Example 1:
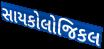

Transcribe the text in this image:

સાયકોલોજિકલ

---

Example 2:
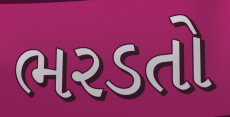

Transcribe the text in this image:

ભરડતો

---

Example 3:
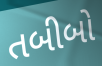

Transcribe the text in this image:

તબીબો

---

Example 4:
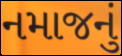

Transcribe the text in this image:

નમાજનું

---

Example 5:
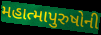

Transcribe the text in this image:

મહાત્માપુરુષોની